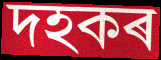
দহকৰ